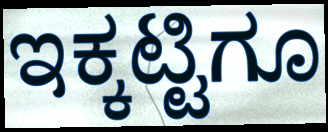
ಇಕ್ಕಟ್ಟಿಗೂ